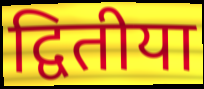
द्वितीया